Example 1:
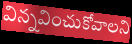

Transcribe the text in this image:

విన్నవించుకోవాలని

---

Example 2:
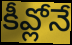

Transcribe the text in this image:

కీవ్లోనే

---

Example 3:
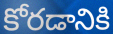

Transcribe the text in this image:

కోరడానికి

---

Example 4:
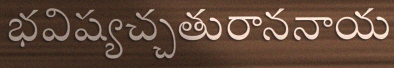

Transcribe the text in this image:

భవిష్యచ్చతురాననాయ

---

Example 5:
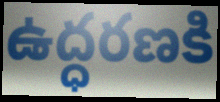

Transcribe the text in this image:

ఉద్ధరణకి